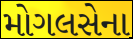
મોગલસેના